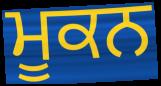
ਮੂਕਨ